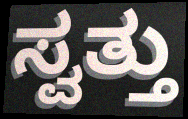
ಸ್ವತ್ತು